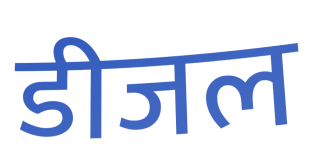
डीजल